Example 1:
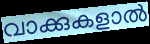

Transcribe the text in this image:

വാക്കുകളാൽ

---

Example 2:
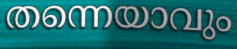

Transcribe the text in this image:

തന്നെയാവും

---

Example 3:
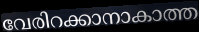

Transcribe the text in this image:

വേരിറക്കാനാകാത്ത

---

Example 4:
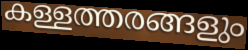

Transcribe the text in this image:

കള്ളത്തരങ്ങളും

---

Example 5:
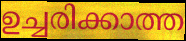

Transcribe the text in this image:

ഉച്ചരിക്കാത്ത